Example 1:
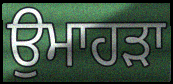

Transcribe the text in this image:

ਉਮਾਹੜਾ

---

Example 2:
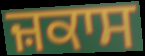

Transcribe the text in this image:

ਜ਼ਕਾਸ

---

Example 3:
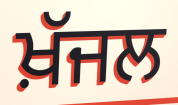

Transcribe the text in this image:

ਖ਼ੱਜਲ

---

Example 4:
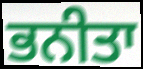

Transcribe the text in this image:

ਭਨੀਤਾ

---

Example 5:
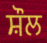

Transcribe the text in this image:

ਸ਼ੌਲ